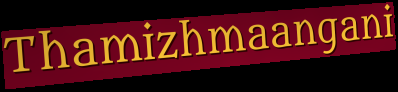
Thamizhmaangani